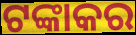
ଟଙ୍କାକର